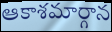
ఆకాశమార్గాన